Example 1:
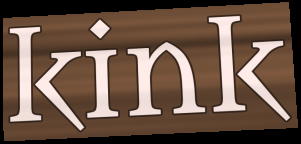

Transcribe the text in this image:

kink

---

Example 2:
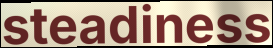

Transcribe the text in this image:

steadiness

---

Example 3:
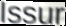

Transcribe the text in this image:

Issur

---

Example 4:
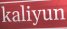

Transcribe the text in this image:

kaliyun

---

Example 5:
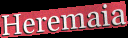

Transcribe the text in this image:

Heremaia